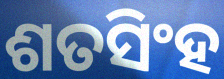
ଶତସିଂହ